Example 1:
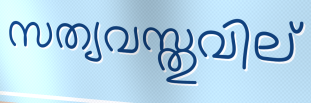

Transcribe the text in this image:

സത്യവസ്തുവില്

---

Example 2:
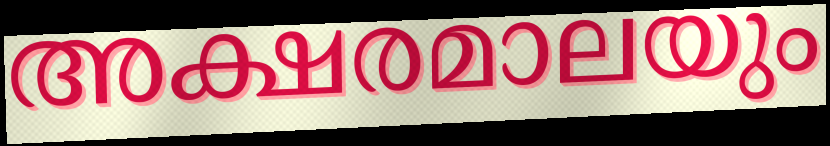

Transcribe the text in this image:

അക്ഷരമാലയും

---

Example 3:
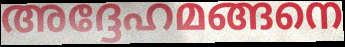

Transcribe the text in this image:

അദ്ദേഹമങ്ങനെ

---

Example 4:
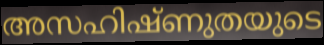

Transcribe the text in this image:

അസഹിഷ്ണുതയുടെ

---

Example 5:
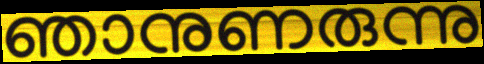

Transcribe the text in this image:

ഞാനുണരുന്നു